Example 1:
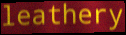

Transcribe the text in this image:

leathery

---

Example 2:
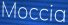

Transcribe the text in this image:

Moccia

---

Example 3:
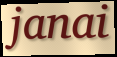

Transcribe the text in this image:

janai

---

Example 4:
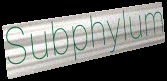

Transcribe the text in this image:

Subphylum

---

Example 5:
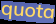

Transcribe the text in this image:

quota